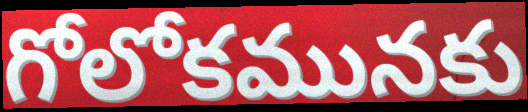
గోలోకమునకు